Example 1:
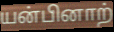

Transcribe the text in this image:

யன்பினாற்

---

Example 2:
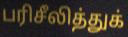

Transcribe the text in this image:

பரிசீலித்துக்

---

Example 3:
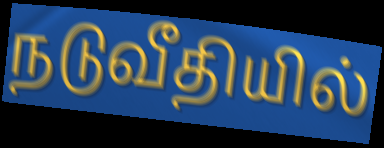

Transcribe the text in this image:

நடுவீதியில்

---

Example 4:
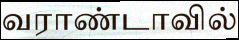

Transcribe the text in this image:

வராண்டாவில்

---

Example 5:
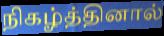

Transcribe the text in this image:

நிகழ்த்தினால்